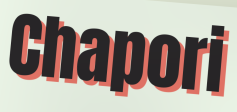
Chapori